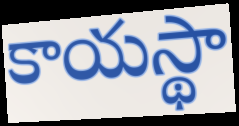
కాయస్థా